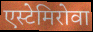
एस्टेमिरोवा